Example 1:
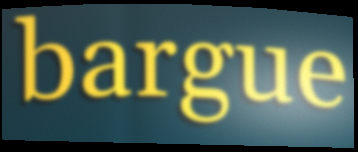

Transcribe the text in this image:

bargue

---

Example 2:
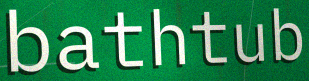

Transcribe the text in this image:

bathtub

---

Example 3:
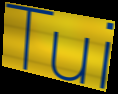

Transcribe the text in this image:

Tui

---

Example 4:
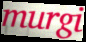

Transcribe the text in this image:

murgi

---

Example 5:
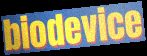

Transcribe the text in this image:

biodevice